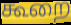
கூறை